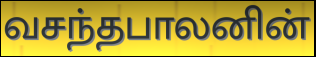
வசந்தபாலனின்